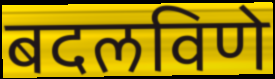
बदलविणे